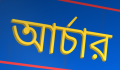
আর্চার